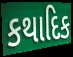
કથાદિક